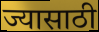
ज्यासाठी